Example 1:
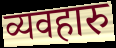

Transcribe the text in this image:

व्यवहारु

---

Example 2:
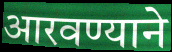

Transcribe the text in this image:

आरवण्याने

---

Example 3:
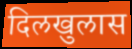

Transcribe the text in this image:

दिलखुलास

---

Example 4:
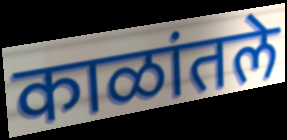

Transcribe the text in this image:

काळांतले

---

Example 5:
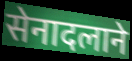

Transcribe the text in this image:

सेनादलाने